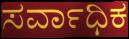
ಸರ್ವಾಧಿಕ